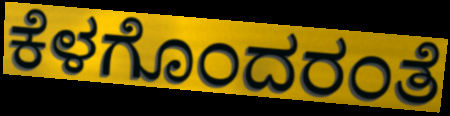
ಕೆಳಗೊಂದರಂತೆ